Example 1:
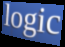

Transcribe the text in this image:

logic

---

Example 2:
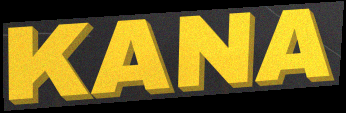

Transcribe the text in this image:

KANA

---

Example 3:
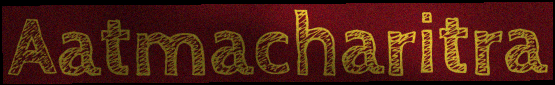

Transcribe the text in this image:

Aatmacharitra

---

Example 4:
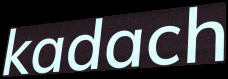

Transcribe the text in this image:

kadach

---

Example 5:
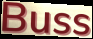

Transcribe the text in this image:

Buss